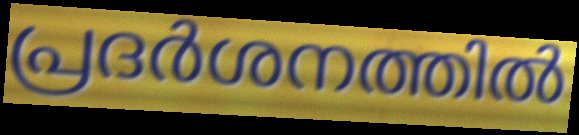
പ്രദർശനത്തിൽ